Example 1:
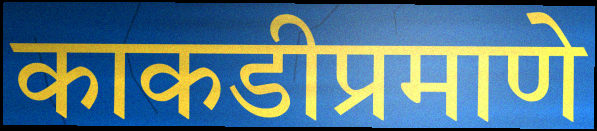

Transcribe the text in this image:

काकडीप्रमाणे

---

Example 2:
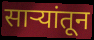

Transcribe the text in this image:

साऱ्यांतून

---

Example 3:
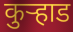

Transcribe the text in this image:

कुर्‍हाड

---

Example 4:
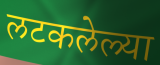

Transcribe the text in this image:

लटकलेल्या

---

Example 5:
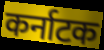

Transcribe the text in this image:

कर्नाटक